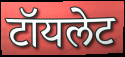
टॉयलेट